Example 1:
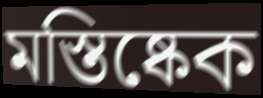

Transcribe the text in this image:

মস্তিষ্কেক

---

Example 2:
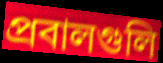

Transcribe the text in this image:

প্রবালগুলি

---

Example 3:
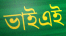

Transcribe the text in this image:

ভাইএই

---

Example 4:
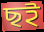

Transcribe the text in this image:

ছই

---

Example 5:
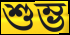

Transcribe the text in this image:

শুম্ভ